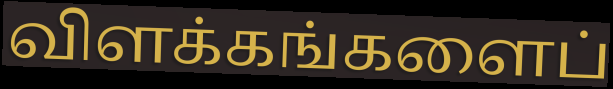
விளக்கங்களைப்